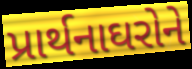
પ્રાર્થનાઘરોને